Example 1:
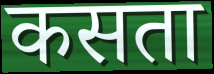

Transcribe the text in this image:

कसता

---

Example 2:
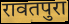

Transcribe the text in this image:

रावतपुरा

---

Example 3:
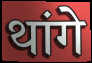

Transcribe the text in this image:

थांगे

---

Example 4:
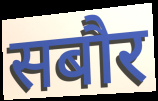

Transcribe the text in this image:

सबौर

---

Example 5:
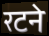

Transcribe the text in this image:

रटने